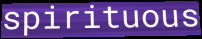
spirituous